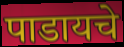
पाडायचे